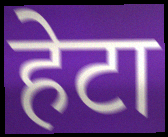
हेटा